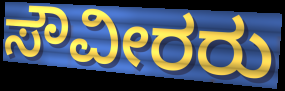
ಸೌವೀರರು